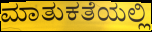
ಮಾತುಕತೆಯಲ್ಲಿ